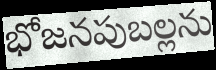
భోజనపుబల్లను